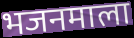
भजनमाला